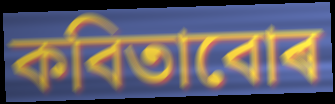
কবিতাবোৰ